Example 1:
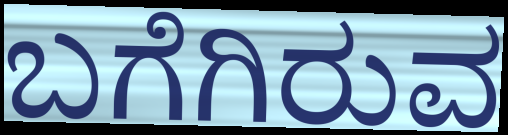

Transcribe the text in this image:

ಬಗೆಗಿರುವ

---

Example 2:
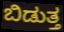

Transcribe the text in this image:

ಬಿಡುತ್ತ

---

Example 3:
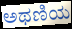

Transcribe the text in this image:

ಅಥಣಿಯ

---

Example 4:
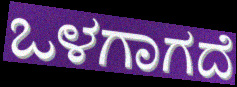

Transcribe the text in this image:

ಒಳಗಾಗದೆ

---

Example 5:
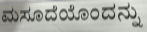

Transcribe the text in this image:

ಮಸೂದೆಯೊಂದನ್ನು